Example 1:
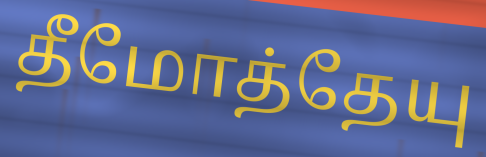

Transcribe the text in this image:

தீமோத்தேயு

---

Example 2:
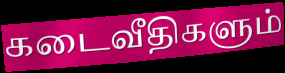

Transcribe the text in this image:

கடைவீதிகளும்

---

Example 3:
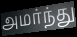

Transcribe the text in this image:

அமர்ந்து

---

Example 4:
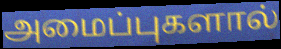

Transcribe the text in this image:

அமைப்புகளால்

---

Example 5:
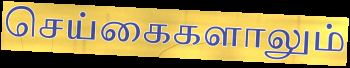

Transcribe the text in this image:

செய்கைகளாலும்